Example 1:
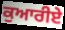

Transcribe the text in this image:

ਕੁਆਰੀਏ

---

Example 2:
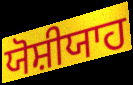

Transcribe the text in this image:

ਯੋਸ਼ੀਯਾਹ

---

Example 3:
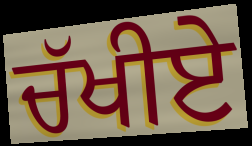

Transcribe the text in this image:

ਚੱਖੀਏ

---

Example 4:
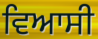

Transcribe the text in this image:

ਵਿਆਸੀ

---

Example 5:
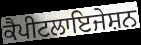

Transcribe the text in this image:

ਕੈਪੀਟਲਾਇਜੇਸ਼ਨ